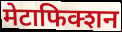
मेटाफिक्शन